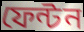
ফেন্টন